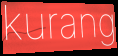
kurang